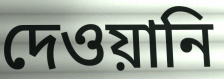
দেওয়ানি